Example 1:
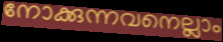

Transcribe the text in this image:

നോക്കുന്നവനെല്ലാം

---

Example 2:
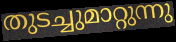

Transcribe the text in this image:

തുടച്ചുമാറ്റുന്നു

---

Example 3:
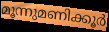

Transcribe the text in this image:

മൂന്നുമണിക്കൂർ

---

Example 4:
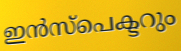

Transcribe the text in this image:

ഇൻസ്പെക്ടറും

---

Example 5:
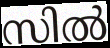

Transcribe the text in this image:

സിൽ